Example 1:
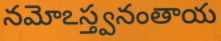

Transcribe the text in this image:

నమోఽస్త్వనంతాయ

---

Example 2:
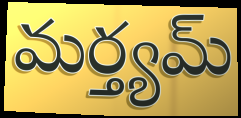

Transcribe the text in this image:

మర్త్యమ్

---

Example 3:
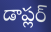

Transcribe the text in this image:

డాప్లర్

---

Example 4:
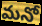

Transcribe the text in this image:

మనో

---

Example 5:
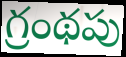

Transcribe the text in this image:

గ్రంథపు